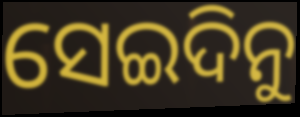
ସେଇଦିନୁ